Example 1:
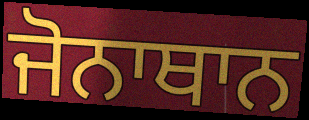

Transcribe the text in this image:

ਜੋਨਾਥਾਨ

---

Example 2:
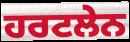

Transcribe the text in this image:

ਹਰਟਲੇਨ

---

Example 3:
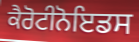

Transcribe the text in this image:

ਕੈਰੋਟੀਨੋਇਡਸ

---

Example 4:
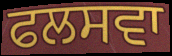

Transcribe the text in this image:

ਫਲਸਵਾ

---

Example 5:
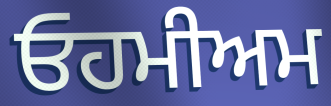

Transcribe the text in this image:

ਓਹਮੀਅਮ